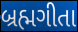
બ્રહ્મગીતા